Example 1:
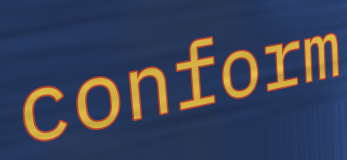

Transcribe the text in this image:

conform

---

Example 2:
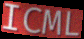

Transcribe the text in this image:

ICML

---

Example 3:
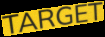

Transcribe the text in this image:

TARGET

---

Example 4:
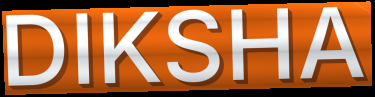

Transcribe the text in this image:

DIKSHA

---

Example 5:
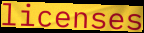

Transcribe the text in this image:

licenses